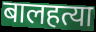
बालहत्या